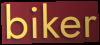
biker